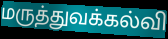
மருத்துவக்கல்வி